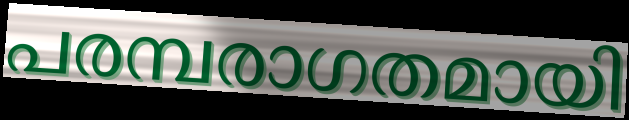
പരമ്പരാഗതമായി